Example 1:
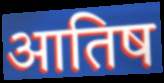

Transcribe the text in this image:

आतिष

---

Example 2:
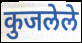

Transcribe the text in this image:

कुजलेले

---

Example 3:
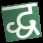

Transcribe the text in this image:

द्ध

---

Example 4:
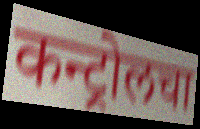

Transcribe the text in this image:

कन्ट्रोलचा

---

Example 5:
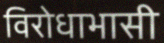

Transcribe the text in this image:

विरोधाभासी